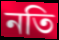
নতি